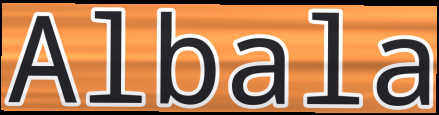
Albala